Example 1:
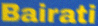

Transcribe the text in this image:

Bairati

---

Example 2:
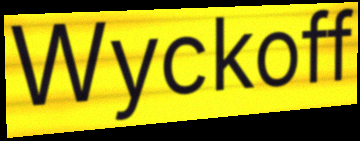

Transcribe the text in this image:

Wyckoff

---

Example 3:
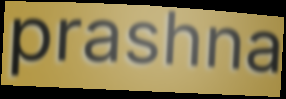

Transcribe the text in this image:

prashna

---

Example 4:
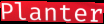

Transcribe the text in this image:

Planter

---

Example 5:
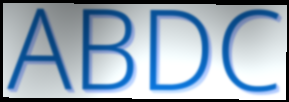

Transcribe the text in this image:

ABDC